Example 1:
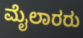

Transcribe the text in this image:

ಮೈಲಾರರು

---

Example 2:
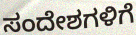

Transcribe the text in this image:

ಸಂದೇಶಗಳಿಗೆ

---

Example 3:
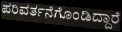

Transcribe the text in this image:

ಪರಿವರ್ತನೆಗೊಂಡಿದ್ದಾರೆ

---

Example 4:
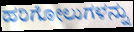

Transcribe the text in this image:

ಹರಿಗೋಲುಗಳನ್ನು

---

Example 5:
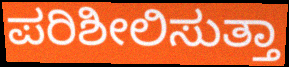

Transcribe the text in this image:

ಪರಿಶೀಲಿಸುತ್ತಾ